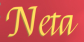
Neta